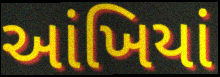
આંખિયાં